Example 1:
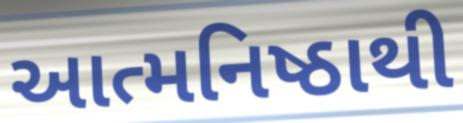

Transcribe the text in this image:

આત્મનિષ્ઠાથી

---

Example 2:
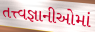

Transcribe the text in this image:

તત્ત્વજ્ઞાનીઓમાં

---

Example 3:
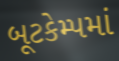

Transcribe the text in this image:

બૂટકેમ્પમાં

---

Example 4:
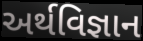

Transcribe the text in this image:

અર્થવિજ્ઞાન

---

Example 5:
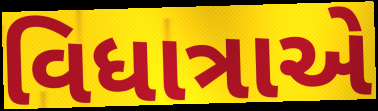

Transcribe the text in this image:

વિધાત્રાએ